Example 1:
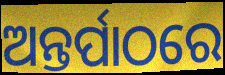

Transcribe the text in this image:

ଅନ୍ତର୍ପାଠରେ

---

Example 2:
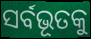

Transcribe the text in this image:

ସର୍ବଭୂତକୁ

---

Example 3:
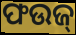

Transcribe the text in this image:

ଫଉଜ୍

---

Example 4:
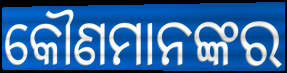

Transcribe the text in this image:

କୌଣମାନଙ୍କର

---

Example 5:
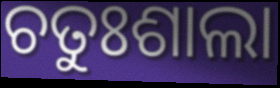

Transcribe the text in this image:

ଚତୁଃଶାଲା